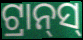
ଟ୍ରାନ୍‍ସ୍